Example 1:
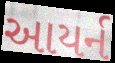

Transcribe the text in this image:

આયર્ન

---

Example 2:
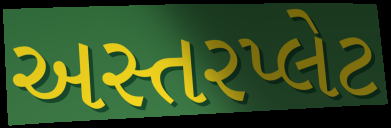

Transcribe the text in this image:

અસ્તરપ્લેટ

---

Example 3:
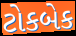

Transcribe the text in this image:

ટોકબેક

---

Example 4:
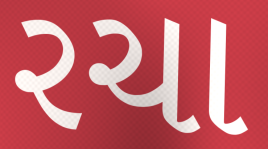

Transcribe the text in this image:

રચા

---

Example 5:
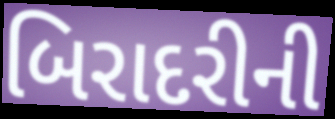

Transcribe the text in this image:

બિરાદરીની